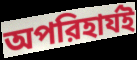
অপরিহার্যই